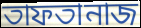
তাফতানাজ